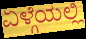
ಏಳ್ಗೆಯಲ್ಲಿ